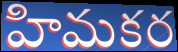
హిమకర